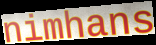
nimhans